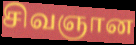
சிவஞான